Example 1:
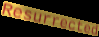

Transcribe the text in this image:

Resurrected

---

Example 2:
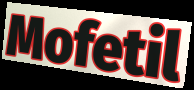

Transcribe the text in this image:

Mofetil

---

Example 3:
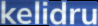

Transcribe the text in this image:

kelidru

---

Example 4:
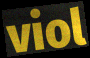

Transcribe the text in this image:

viol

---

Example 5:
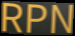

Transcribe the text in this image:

RPN